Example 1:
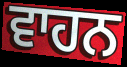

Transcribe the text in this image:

ਵਾਹਨ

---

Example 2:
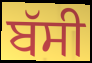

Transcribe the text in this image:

ਬੱਸੀ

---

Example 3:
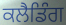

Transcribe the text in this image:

ਕਲੈਡਿੰਗ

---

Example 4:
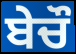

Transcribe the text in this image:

ਬੇਚੌ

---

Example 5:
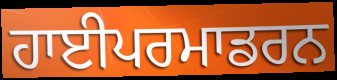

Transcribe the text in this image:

ਹਾਈਪਰਮਾਡਰਨ